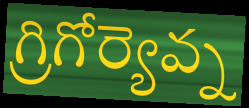
గ్రిగోర్యెవ్న